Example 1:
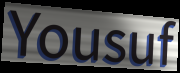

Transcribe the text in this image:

Yousuf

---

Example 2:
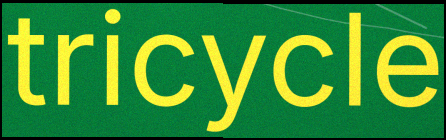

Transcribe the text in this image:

tricycle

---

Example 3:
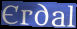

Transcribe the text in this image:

Erdal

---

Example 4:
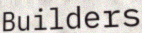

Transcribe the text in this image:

Builders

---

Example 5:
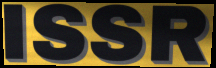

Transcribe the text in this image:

ISSR